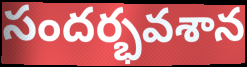
సందర్భవశాన